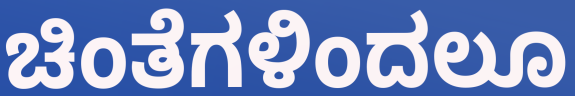
ಚಿಂತೆಗಳಿಂದಲೂ